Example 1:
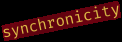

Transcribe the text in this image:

synchronicity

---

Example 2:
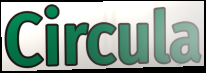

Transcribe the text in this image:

Circula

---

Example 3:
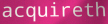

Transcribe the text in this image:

acquireth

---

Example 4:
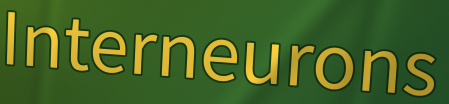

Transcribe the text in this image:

Interneurons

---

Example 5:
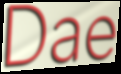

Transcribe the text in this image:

Dae